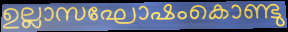
ഉല്ലാസഘോഷംകൊണ്ടു